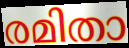
രമിതാ